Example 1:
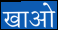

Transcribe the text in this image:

खाओ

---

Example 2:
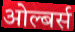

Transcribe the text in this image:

ओल्बर्स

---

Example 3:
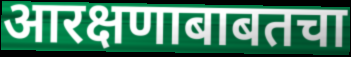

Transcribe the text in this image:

आरक्षणाबाबतचा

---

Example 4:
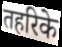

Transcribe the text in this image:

तहरिके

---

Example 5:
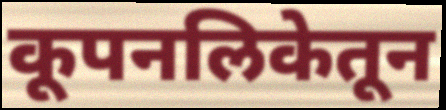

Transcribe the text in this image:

कूपनलिकेतून